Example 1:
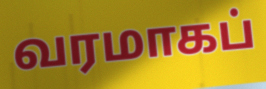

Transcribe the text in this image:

வரமாகப்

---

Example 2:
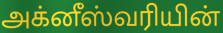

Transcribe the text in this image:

அக்னீஸ்வரியின்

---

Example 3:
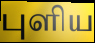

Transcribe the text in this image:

புளிய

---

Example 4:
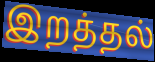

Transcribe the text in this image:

இறத்தல்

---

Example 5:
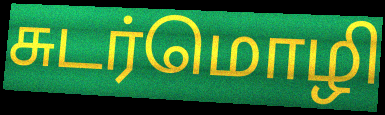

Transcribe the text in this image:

சுடர்மொழி